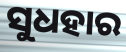
ସୁଧହାର